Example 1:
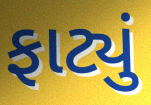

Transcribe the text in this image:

ફાટ્યું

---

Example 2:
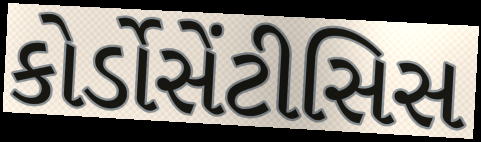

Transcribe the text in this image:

કોર્ડોસેંટીસિસ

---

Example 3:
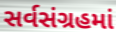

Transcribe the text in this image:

સર્વસંગ્રહમાં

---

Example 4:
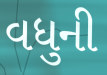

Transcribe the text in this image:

વધુની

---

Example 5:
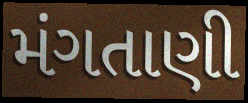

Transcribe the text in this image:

મંગતાણી